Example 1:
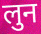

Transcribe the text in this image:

लुन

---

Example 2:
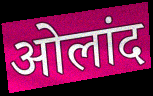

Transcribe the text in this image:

ओलांद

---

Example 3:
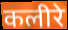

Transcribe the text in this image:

कलीरे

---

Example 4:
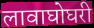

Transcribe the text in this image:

लावाघोघरी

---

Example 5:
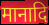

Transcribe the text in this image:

मानादि